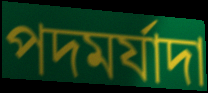
পদমর্যাদা